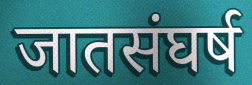
जातसंघर्ष